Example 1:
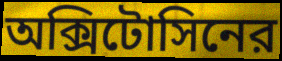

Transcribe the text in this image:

অক্সিটোসিনের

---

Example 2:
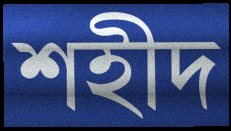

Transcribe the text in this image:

শহীদ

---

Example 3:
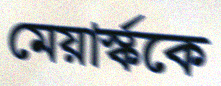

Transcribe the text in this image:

মেয়ার্স্ককে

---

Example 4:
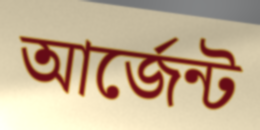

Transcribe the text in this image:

আর্জেন্ট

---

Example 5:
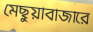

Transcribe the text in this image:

মেছুয়াবাজারে